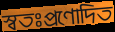
স্বতঃপ্রণোদিত